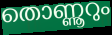
തൊണ്ണൂറും